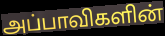
அப்பாவிகளின்